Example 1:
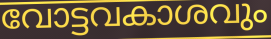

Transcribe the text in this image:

വോട്ടവകാശവും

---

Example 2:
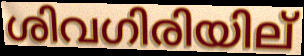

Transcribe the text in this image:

ശിവഗിരിയില്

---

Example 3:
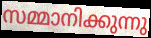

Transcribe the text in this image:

സമ്മാനിക്കുന്നു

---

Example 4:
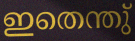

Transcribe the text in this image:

ഇതെന്തു്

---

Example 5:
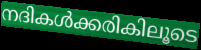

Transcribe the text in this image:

നദികൾക്കരികിലൂടെ